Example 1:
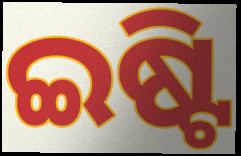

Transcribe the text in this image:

ଇଷ୍ଟି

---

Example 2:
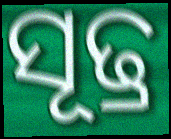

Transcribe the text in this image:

ସୂଢ୍ର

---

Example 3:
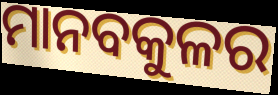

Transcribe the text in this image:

ମାନବକୁଳର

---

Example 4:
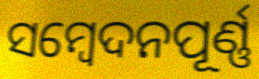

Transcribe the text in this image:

ସମ୍ବେଦନପୂର୍ଣ୍ଣ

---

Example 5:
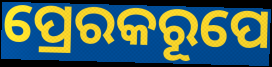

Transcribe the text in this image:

ପ୍ରେରକରୂପେ